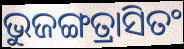
ଭୁଜଙ୍ଗତ୍ରାସିତଂ